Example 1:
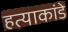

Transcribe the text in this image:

हत्याकांडे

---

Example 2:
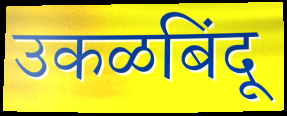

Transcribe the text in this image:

उकळबिंदू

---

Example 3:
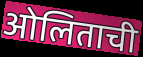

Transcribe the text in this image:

ओलिताची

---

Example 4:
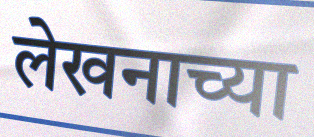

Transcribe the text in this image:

लेखनाच्या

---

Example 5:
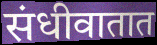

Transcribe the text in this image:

संधीवातात